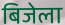
बिजेला